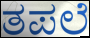
ತಪಲೆ